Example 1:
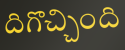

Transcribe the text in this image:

దిగొచ్చింది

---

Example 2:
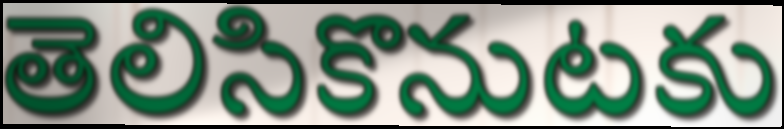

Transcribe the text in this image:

తెలిసికొనుటకు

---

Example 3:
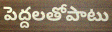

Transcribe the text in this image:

పెద్దలతోపాటు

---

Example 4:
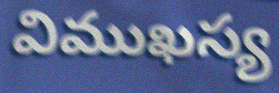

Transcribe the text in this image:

విముఖస్య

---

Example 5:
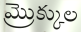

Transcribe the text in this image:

మ్రొక్కుల